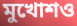
মুখোশও